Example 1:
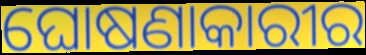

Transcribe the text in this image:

ଘୋଷଣାକାରୀର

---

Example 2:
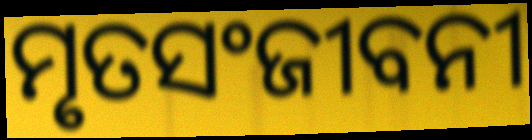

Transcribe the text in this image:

ମୃତସଂଜୀବନୀ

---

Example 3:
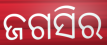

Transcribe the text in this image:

ଜଗସିର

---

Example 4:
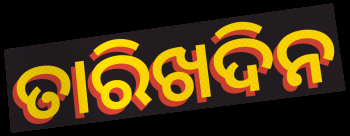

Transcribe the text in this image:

ତାରିଖଦିନ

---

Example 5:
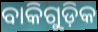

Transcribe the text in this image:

ବାକିଗୁଡ଼ିକ